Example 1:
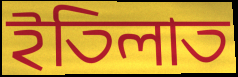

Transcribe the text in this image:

ইতিলাত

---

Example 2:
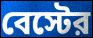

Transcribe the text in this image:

বেস্টের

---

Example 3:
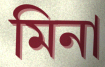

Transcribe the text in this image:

মিনা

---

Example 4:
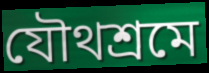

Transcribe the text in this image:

যৌথশ্রমে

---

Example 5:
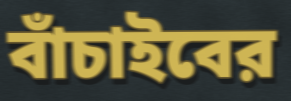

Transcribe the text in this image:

বাঁচাইবের